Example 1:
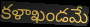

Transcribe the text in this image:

కళాఖండమే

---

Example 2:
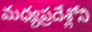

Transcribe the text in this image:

మధ్యప్రదేశ్లోని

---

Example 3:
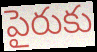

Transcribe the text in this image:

పైరుకు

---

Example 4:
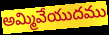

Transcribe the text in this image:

అమ్మివేయుదము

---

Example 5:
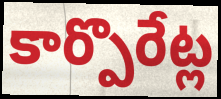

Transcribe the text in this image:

కార్పొరేట్ల